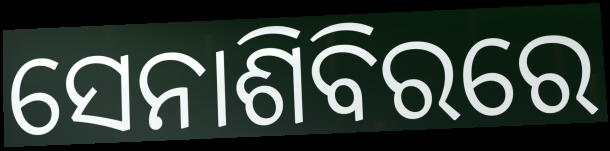
ସେନାଶିବିରରେ